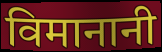
विमानानी